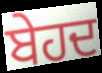
ਬੇਹਦ